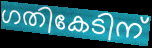
ഗതികേടിന്